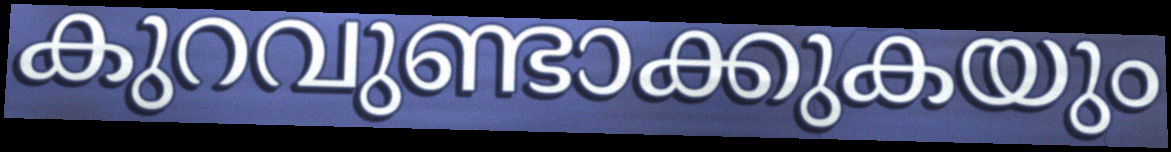
കുറവുണ്ടാക്കുകയും